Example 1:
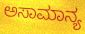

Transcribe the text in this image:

ಅಸಾಮಾನ್ಯ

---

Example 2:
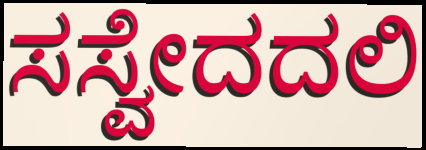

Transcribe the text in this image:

ಸಸ್ವೇದದಲಿ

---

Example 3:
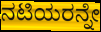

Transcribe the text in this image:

ನಟಿಯರನ್ನೇ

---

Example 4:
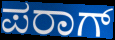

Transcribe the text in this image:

ಪರಾಗ್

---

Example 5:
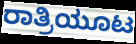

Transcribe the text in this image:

ರಾತ್ರಿಯೂಟ